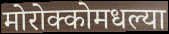
मोरोक्कोमधल्या